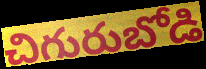
చిగురుబోడి